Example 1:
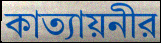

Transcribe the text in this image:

কাত্যায়নীর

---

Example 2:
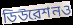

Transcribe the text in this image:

ডিউরেশনও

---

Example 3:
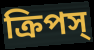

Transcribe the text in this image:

ক্রিপস্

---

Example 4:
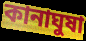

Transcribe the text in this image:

কানাঘুষা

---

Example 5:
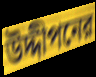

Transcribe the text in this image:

উদ্দীপনের